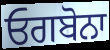
ਓਗਬੋਨਾ